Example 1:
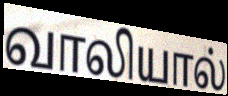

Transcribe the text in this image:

வாலியால்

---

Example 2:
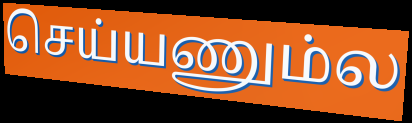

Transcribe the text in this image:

செய்யணும்ல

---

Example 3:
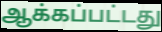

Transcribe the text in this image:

ஆக்கப்பட்டது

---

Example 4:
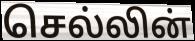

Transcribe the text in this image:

செல்லின்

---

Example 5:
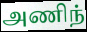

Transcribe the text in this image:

அணிந்